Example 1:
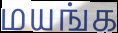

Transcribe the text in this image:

மயங்க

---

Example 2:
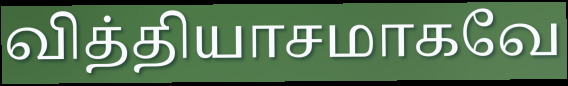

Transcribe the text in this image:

வித்தியாசமாகவே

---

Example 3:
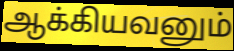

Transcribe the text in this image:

ஆக்கியவனும்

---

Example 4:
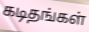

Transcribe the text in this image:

கடிதங்கள்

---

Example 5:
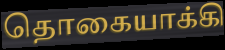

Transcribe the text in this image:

தொகையாக்கி